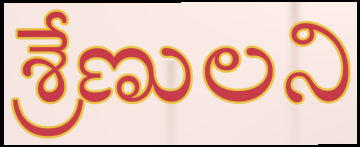
శ్రేణులని